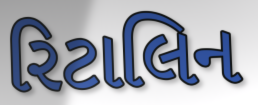
રિટાલિન